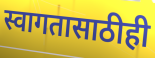
स्वागतासाठीही